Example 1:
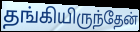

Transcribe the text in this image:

தங்கியிருந்தேன்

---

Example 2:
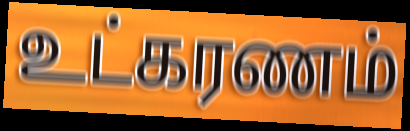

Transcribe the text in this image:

உட்கரணம்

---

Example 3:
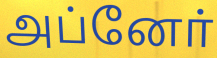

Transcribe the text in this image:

அப்னேர்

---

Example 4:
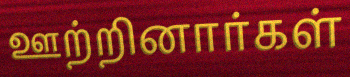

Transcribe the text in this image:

ஊற்றினார்கள்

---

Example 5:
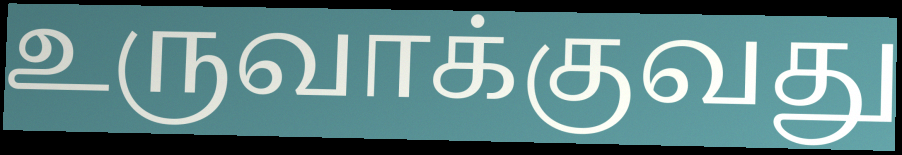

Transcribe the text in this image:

உருவாக்குவது